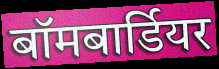
बॉमबार्डियर